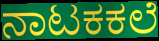
ನಾಟಕಕಲೆ